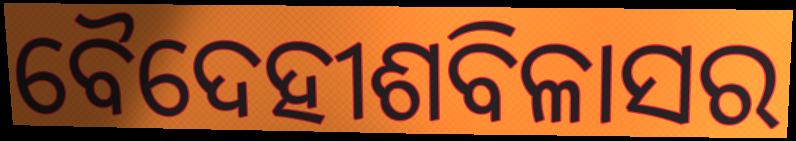
ବୈଦେହୀଶବିଳାସର